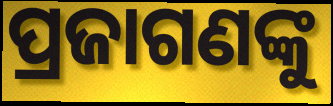
ପ୍ରଜାଗଣଙ୍କୁ